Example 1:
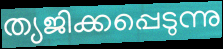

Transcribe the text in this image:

ത്യജിക്കപ്പെടുന്നു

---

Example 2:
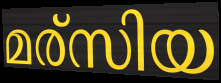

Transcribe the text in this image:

മര്സിയ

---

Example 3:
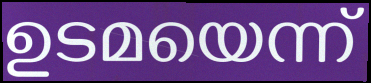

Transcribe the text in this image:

ഉടമയെന്ന്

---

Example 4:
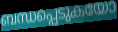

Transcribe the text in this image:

ബന്ധപ്പെടുകയോ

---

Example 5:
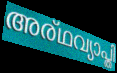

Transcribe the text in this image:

അര്ഥവ്യാപ്തി